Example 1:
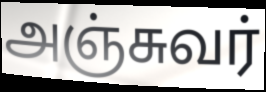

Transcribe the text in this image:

அஞ்சுவர்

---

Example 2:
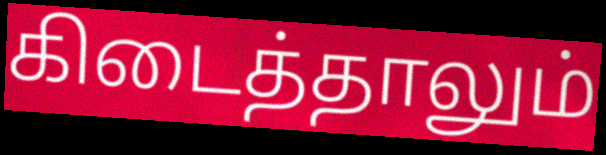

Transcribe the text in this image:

கிடைத்தாலும்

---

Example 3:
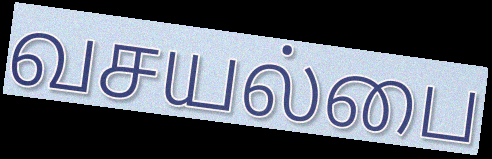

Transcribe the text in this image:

வசயல்பை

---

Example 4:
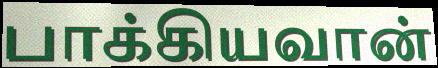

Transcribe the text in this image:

பாக்கியவான்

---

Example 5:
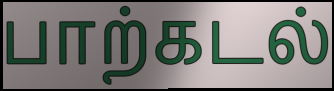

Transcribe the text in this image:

பாற்கடல்